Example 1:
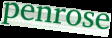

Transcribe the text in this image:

penrose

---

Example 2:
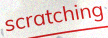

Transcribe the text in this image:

scratching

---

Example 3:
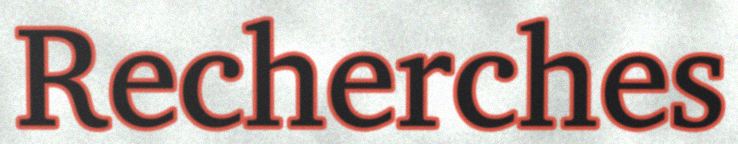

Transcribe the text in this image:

Recherches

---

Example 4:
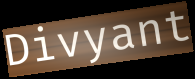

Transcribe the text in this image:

Divyant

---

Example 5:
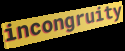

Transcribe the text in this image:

incongruity